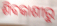
ଶିବକାଶୀରୁ